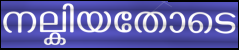
നല്കിയതോടെ